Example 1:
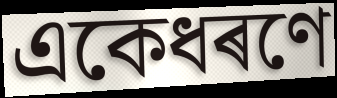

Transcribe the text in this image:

একেধৰণে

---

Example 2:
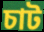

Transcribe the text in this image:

চাট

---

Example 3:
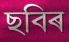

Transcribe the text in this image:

ছবিৰ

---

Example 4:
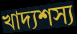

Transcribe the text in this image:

খাদ্যশস্য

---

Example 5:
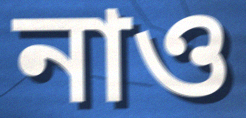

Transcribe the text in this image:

নাও